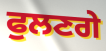
ਫੁਲਣਗੇ